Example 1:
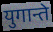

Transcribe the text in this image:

युगान्ते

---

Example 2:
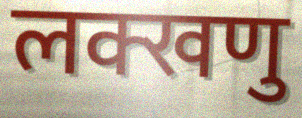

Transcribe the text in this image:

लक्खणु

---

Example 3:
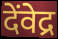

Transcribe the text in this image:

देंवेद्र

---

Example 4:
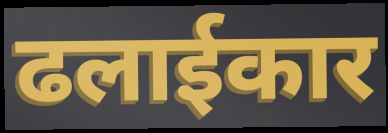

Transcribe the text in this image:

ढलाईकार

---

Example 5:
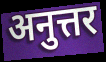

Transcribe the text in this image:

अनुत्तर